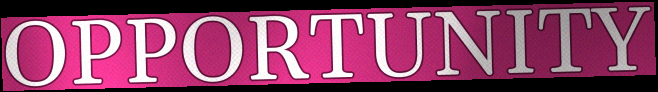
OPPORTUNITY